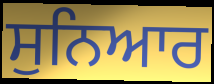
ਸੁਨਿਆਰ